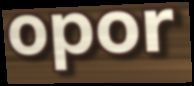
opor